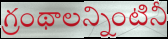
గ్రంథాలన్నింటినీ